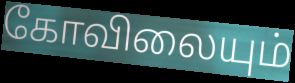
கோவிலையும்